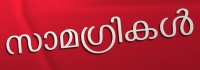
സാമഗ്രികൾ